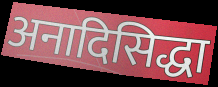
अनादिसिद्धा